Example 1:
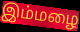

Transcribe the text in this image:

இம்மழை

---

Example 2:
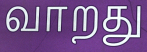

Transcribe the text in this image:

வாறது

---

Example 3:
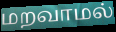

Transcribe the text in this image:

மறவாமல்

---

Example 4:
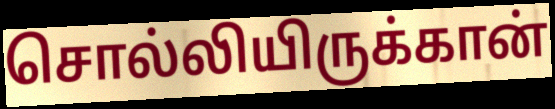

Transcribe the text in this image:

சொல்லியிருக்கான்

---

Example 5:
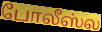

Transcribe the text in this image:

போலீஸ்ல